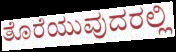
ತೊರೆಯುವುದರಲ್ಲಿ